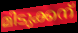
മിടുക്കന്